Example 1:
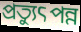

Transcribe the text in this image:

প্রত্যুৎপন্ন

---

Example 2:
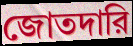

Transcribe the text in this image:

জোতদারি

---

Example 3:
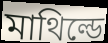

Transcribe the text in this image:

মাথিল্ডে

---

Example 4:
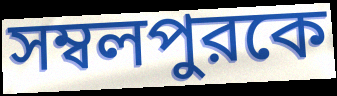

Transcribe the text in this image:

সম্বলপুরকে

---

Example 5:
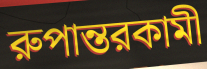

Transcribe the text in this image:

রুপান্তরকামী